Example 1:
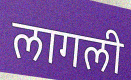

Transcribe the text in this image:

लागली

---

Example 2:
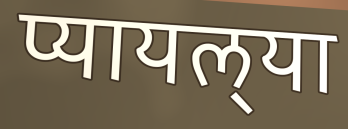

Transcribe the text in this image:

प्यायल्या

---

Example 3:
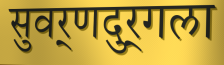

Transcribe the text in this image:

सुवर्णदुर्गला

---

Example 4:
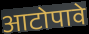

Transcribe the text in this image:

आटोपावे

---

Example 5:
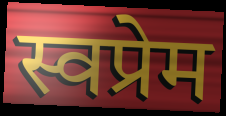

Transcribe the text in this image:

स्वप्रेम